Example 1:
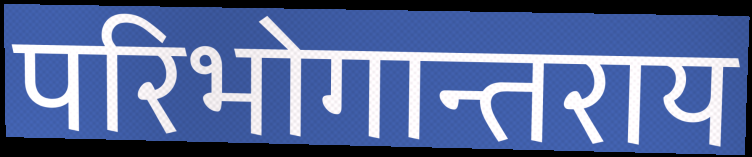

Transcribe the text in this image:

परिभोगान्तराय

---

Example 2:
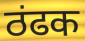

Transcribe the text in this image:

ठंढक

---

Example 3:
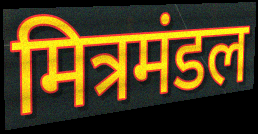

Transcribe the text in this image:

मित्रमंडल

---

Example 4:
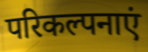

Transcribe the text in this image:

परिकल्पनाएं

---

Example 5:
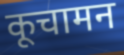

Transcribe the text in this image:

कूचामन